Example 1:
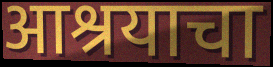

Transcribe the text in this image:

आश्रयाचा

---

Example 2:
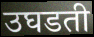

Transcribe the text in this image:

उघडती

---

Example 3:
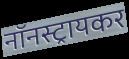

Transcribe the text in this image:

नॉनस्ट्रायकर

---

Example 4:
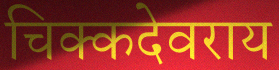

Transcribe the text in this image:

चिक्कदेवराय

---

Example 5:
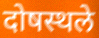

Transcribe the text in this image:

दोषस्थले